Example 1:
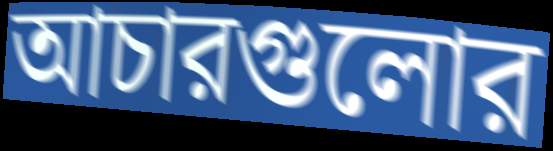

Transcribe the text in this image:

আচারগুলোর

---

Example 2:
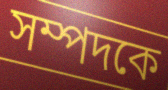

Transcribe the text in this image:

সম্পদকে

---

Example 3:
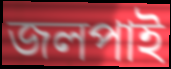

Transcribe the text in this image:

জলপাই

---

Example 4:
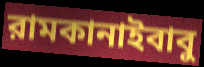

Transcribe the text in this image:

রামকানাইবাবু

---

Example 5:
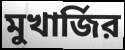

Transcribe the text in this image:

মুখার্জির